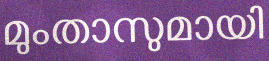
മുംതാസുമായി